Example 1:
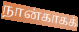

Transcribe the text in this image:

நான்காகக்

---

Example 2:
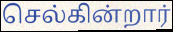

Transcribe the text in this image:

செல்கின்றார்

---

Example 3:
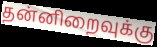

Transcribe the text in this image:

தன்னிறைவுக்கு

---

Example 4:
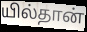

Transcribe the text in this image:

யில்தான்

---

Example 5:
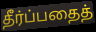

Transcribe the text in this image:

தீர்ப்பதைத்